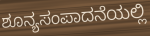
ಶೂನ್ಯಸಂಪಾದನೆಯಲ್ಲಿ